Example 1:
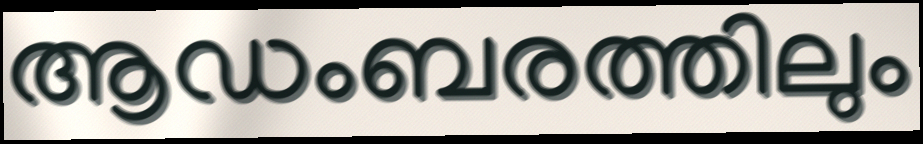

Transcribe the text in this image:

ആഡംബരത്തിലും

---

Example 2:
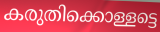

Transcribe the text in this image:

കരുതിക്കൊള്ളട്ടെ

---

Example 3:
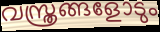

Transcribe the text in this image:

വസ്ത്രങ്ങളോടും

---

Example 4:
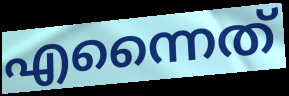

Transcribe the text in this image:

എന്നൈത്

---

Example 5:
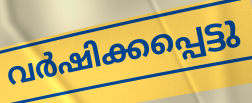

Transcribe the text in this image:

വർഷിക്കപ്പെട്ടു